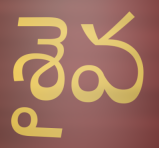
శైవ